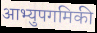
आभ्युपगमिकी